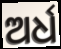
ଅର୍ଧ